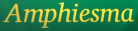
Amphiesma